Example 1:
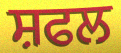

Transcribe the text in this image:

ਸ਼ਫਲ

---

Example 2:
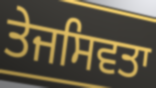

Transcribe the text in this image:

ਤੇਜਸਿਵਤਾ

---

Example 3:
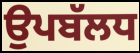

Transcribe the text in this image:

ਉਪਬੱਲਧ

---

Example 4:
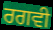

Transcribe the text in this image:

ਰਗਵੀ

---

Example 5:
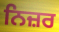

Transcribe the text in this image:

ਨਿਜ਼ਰ